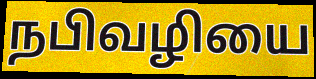
நபிவழியை